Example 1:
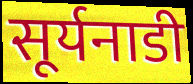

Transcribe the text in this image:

सूर्यनाडी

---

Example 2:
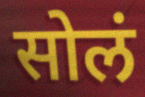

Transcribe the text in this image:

सोलं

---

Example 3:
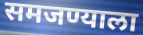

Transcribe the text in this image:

समजण्याला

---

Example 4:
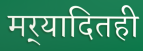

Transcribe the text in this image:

मर्यादितही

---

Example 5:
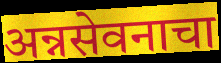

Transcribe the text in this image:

अन्नसेवनाचा